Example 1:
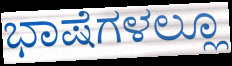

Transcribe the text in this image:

ಭಾಷೆಗಳಲ್ಲೂ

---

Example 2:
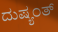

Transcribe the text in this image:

ದುಷ್ಯಂತ್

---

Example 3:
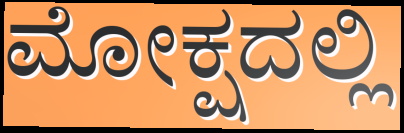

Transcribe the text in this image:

ಮೋಕ್ಷದಲ್ಲಿ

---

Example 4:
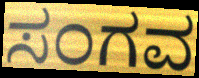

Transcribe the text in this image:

ಸಂಗವ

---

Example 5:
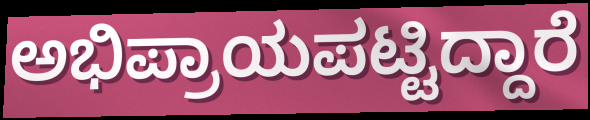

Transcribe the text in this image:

ಅಭಿಪ್ರಾಯಪಟ್ಟಿದ್ದಾರೆ